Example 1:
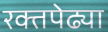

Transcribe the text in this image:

रक्तपेढ्या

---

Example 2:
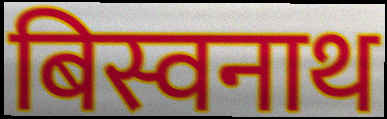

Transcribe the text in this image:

बिस्वनाथ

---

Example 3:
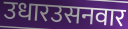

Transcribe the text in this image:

उधारउसनवार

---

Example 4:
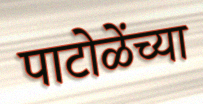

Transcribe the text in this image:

पाटोळेंच्या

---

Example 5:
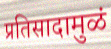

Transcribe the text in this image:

प्रतिसादामुळं